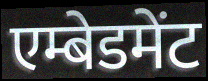
एम्बेडमेंट